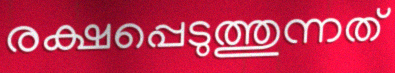
രക്ഷപ്പെടുത്തുന്നത്